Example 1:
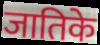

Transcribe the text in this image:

जातिके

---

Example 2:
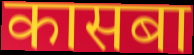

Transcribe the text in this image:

कासबा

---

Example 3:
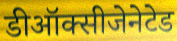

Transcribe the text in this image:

डीऑक्सीजेनेटेड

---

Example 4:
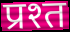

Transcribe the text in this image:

प्रश्त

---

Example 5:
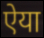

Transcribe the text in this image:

ऐया